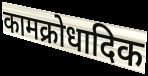
कामक्रोधादिक